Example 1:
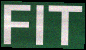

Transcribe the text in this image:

FIT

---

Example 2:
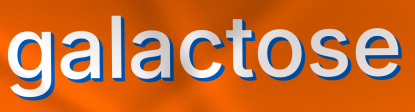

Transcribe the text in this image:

galactose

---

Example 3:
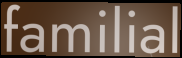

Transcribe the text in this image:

familial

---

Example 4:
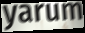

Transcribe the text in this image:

yarum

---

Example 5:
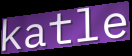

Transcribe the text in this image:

katle